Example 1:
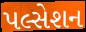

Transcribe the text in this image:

પલ્સેશન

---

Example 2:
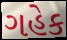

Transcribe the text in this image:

ગહેક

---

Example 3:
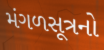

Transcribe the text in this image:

મંગળસૂત્રનો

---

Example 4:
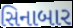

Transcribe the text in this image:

સિનાબાર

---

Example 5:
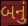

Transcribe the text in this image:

બનું